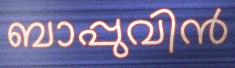
ബാപ്പുവിൻ